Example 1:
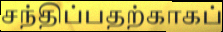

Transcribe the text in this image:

சந்திப்பதற்காகப்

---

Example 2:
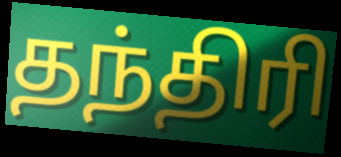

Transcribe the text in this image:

தந்திரி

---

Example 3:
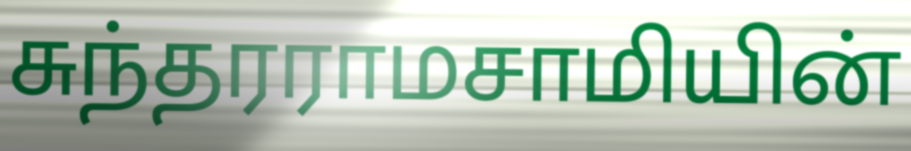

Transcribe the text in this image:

சுந்தரராமசாமியின்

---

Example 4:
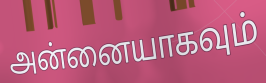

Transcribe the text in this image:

அன்னையாகவும்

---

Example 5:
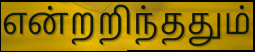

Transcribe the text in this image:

என்றறிந்ததும்